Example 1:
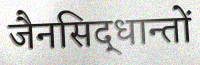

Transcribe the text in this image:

जैनसिद्धान्तों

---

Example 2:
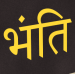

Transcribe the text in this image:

भंति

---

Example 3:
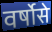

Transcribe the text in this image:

वर्षोसे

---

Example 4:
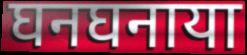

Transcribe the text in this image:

घनघनाया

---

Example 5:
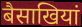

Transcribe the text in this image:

बैसाखियां